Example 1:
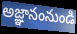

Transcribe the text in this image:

అజ్ఞానంనుండి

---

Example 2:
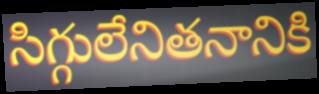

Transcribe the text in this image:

సిగ్గులేనితనానికి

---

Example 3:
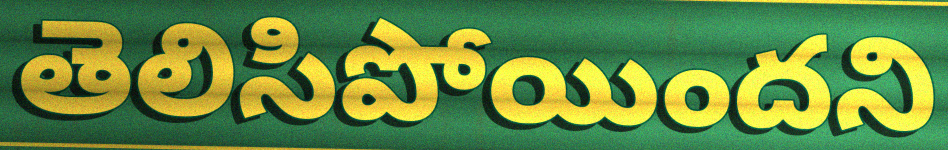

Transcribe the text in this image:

తెలిసిపోయిందని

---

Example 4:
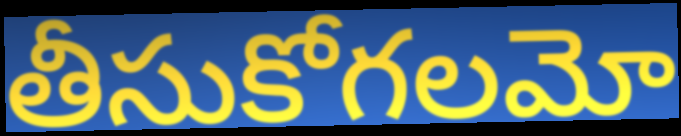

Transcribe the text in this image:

తీసుకోగలమో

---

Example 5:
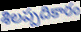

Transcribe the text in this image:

శిలప్పదికారం